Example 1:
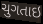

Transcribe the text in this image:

ચુગતાઇ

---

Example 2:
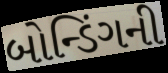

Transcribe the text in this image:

બોન્ડિંગની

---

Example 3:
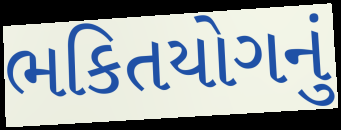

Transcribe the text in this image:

ભકિતયોગનું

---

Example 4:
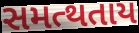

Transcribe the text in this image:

સમત્થતાય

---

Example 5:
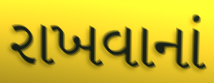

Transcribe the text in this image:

રાખવાનાં